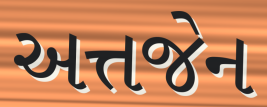
અત્તજેન